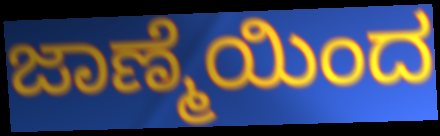
ಜಾಣ್ಮೆಯಿಂದ